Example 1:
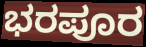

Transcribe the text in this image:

ಭರಪೂರ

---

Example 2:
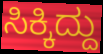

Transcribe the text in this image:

ಸಿಕ್ಕಿದ್ದು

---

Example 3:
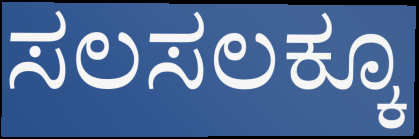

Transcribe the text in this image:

ಸಲಸಲಕ್ಕೂ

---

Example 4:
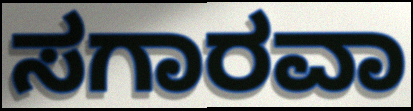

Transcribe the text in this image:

ಸಗಾರವಾ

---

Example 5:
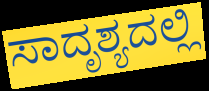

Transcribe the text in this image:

ಸಾದೃಶ್ಯದಲ್ಲಿ